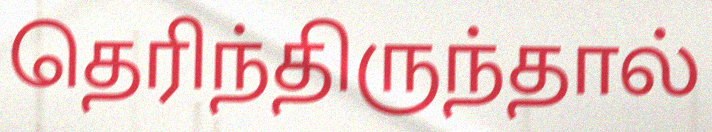
தெரிந்திருந்தால்